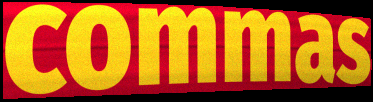
commas